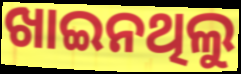
ଖାଇନଥିଲୁ